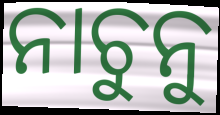
ନାଚୁନୁ